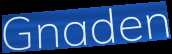
Gnaden